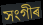
সংগীৰ